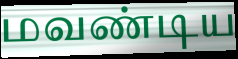
மவண்டிய